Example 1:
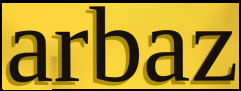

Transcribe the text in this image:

arbaz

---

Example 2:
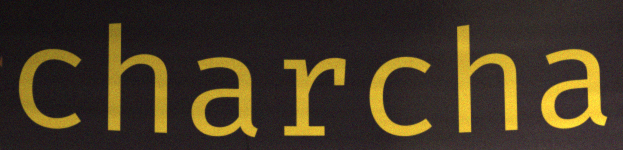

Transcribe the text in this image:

charcha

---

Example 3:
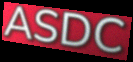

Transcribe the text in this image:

ASDC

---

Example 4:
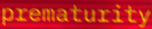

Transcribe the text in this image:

prematurity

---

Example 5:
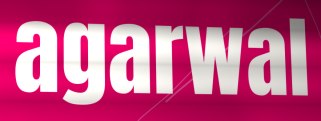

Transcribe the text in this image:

agarwal